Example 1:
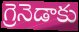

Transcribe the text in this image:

గ్రెనెడాకు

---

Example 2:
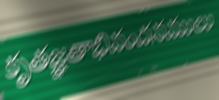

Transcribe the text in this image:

కృతజ్ఞతాభివందనములు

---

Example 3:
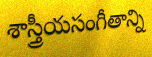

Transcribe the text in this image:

శాస్త్రీయసంగీతాన్ని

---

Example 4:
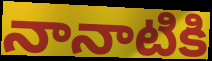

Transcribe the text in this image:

నానాటికి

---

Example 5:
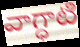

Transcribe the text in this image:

వాగ్ధాటి